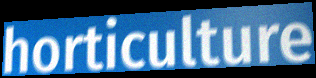
horticulture